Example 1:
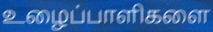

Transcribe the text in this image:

உழைப்பாளிகளை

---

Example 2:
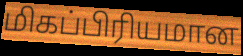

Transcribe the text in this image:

மிகப்பிரியமான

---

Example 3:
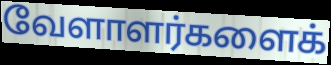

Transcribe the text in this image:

வேளாளர்களைக்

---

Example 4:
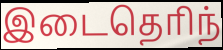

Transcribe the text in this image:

இடைதெரிந்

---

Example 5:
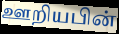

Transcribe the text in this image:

ஊறியபின்